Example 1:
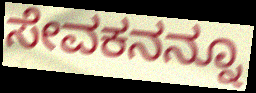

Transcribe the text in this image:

ಸೇವಕನನ್ನೂ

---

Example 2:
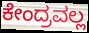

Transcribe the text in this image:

ಕೇಂದ್ರವಲ್ಲ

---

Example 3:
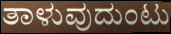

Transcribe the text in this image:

ತಾಳುವುದುಂಟು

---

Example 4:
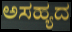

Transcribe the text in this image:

ಅಸಹ್ಯದ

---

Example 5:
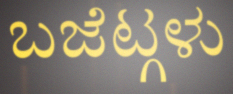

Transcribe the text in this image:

ಬಜೆಟ್ಗಳು